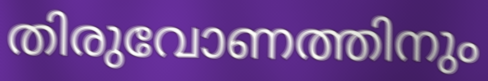
തിരുവോണത്തിനും